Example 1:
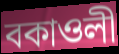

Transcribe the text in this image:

বকাওলী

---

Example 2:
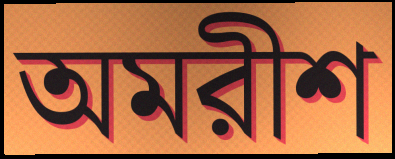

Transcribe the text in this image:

অমরীশ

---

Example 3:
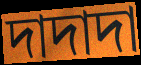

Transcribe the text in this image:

দাদাদা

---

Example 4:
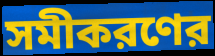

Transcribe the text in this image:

সমীকরণের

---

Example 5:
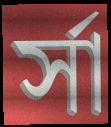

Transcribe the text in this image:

র্সা